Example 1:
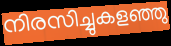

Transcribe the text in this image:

നിരസിച്ചുകളഞ്ഞു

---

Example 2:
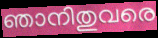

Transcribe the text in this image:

ഞാനിതുവരെ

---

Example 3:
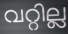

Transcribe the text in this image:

വറ്റില്ല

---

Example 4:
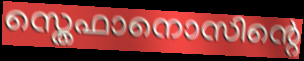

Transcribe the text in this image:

സ്തെഫാനൊസിന്റെ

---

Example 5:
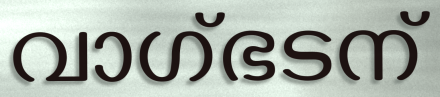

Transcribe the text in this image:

വാഗ്ഭടന്